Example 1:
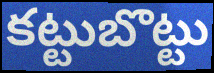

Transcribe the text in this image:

కట్టుబొట్టు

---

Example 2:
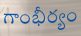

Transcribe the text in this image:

గాంభీర్యం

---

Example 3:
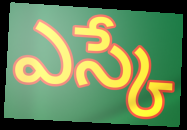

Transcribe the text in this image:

ఎస్కే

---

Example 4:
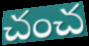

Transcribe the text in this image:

చంచ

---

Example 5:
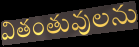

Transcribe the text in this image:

వితంతువులను